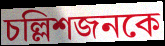
চল্লিশজনকে